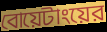
বোয়েটাংয়ের